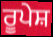
ਰੂਪੇਸ਼